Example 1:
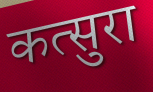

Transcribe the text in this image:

कत्सुरा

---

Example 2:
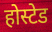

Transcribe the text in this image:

होस्टेड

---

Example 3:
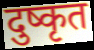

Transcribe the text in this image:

दुष्कृत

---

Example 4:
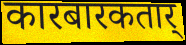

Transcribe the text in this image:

कारबारकतार्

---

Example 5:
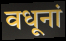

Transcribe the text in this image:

वधूनां